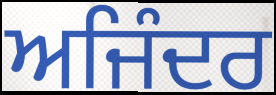
ਅਜਿੰਦਰ